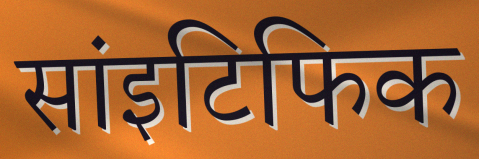
सांइटिफिक